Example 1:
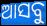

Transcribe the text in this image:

ଆସବୁ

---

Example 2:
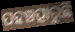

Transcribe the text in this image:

ପହଞ୍ଚତ୍ପାରୁଛି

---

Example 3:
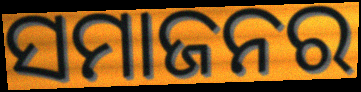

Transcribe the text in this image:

ସମାଜନର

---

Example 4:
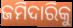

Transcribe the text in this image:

ଜମିଦାରିକୁ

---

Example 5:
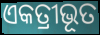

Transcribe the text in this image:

ଏକତ୍ରୀଭୂତ